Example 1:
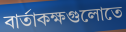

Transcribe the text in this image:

বার্তাকক্ষগুলোতে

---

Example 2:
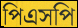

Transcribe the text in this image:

পিএসপি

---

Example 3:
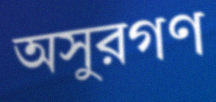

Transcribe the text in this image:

অসুরগণ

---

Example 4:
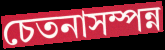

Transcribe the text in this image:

চেতনাসম্পন্ন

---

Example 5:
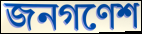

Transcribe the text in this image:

জনগণেশ